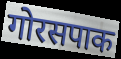
गोरसपाक